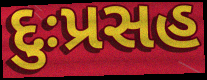
દુઃપ્રસહ